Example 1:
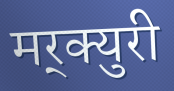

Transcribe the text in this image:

मर्क्युरी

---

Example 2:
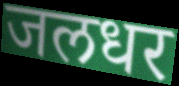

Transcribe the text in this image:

जलधर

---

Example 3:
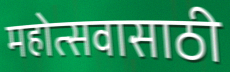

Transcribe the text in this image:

महोत्सवासाठी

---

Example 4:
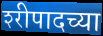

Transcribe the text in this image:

श्रीपादच्या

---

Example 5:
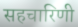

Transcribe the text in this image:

सहचारिणी